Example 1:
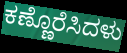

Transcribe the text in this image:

ಕಣ್ಣೊರೆಸಿದಳು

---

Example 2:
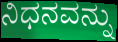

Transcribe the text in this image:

ನಿಧನವನ್ನು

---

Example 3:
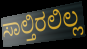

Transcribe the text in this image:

ಸಾಲ್ತಿರಲಿಲ್ಲ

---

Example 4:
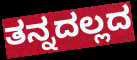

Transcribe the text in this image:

ತನ್ನದಲ್ಲದ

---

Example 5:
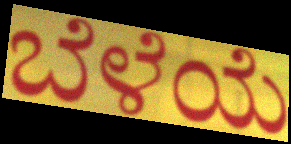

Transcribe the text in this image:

ಬೆಳೆಯೆ